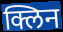
क्लिन